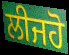
ਲੀਜਹੋ